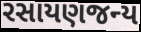
રસાયણજન્ય